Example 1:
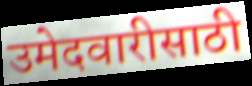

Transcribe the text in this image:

उमेदवारीसाठी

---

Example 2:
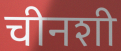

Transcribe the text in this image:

चीनशी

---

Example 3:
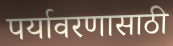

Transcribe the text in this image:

पर्यावरणासाठी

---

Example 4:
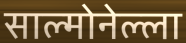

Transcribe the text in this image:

साल्मोनेल्ला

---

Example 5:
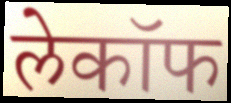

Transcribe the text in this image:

लेकॉफ